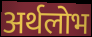
अर्थलोभ